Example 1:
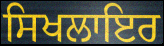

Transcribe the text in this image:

ਸਿਖਲਾਇਰ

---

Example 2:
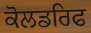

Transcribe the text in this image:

ਕੋਲਡਰਿਫ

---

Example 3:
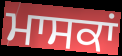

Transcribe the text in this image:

ਮਾਸਕਾਂ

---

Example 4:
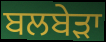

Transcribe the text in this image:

ਬਲਬੇਡ਼ਾ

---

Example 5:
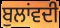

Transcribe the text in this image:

ਬੁਲਾਂਵਦੀ